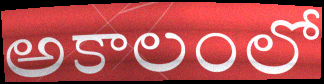
అకాలంలో